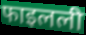
फाइलली